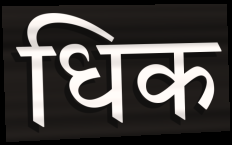
धिक